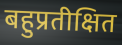
बहुप्रतीक्षित